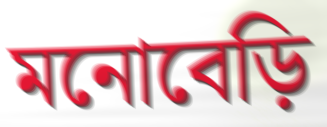
মনোবেড়ি